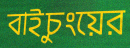
বাইচুংয়ের